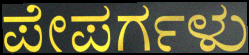
ಪೇಪರ್ಗಳು